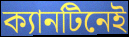
ক্যানটিনেই